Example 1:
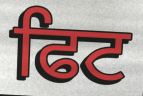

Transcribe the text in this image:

ਫਿਟ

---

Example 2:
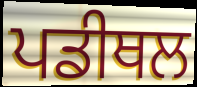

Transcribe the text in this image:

ਪਡੀਥਲ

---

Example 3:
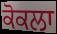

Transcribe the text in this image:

ਕੋਕਲਾ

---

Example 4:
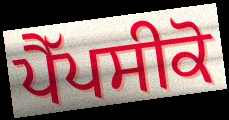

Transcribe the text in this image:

ਪੈੱਪਸੀਕੋ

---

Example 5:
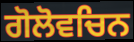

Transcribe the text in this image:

ਗੋਲੋਵਚਿਨ